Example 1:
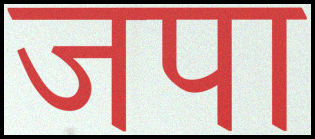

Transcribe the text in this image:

जपा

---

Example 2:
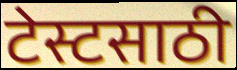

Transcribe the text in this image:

टेस्टसाठी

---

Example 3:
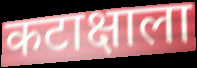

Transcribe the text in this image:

कटाक्षाला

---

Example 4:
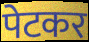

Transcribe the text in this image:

पेटकर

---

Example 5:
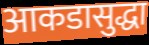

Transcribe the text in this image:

आकडासुद्धा